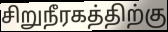
சிறுநீரகத்திற்கு